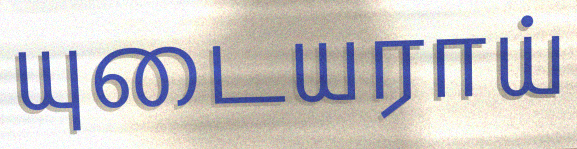
யுடையராய்